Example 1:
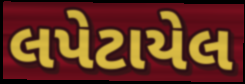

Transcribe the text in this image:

લપેટાયેલ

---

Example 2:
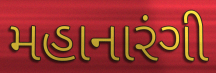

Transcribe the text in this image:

મહાનારંગી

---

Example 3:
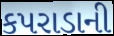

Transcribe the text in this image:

કપરાડાની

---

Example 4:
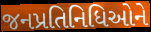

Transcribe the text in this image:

જનપ્રતિનિધિઓને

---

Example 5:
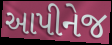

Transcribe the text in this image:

આપીનેજ